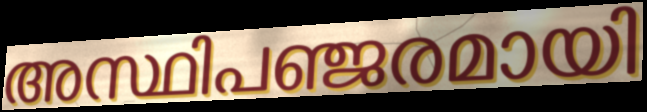
അസ്ഥിപഞ്ജരമായി